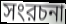
সংরচনা